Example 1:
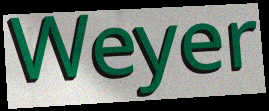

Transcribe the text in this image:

Weyer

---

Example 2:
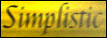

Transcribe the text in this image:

Simplistic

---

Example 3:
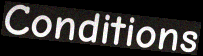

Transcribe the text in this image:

Conditions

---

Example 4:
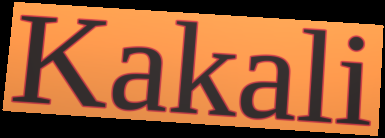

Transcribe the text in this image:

Kakali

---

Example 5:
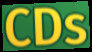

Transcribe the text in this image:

CDs